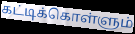
கட்டிக்கொள்ளும்